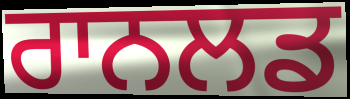
ਰਾਨਲਡ